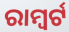
ରାମ୍ବର୍ଟ